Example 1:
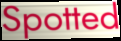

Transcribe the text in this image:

Spotted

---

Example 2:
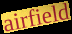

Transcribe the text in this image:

airfield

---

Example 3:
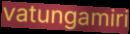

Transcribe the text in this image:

vatungamiri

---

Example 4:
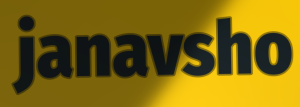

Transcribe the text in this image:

janavsho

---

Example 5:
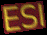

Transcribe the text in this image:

ESI